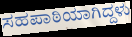
ಸಹಪಾಠಿಯಾಗಿದ್ದಳು